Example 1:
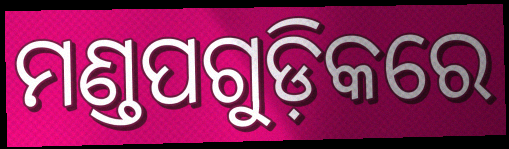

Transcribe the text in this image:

ମଣ୍ଡପଗୁଡ଼ିକରେ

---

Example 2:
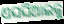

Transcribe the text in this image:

ଏସସିଆଇକୁ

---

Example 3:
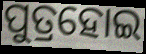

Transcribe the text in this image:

ପୁତ୍ରହୋଇ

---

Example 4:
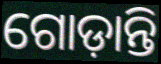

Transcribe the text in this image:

ଗୋଡ଼ାନ୍ତି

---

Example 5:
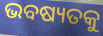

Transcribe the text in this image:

ଭବଷ୍ୟତକୁ